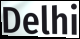
Delhi